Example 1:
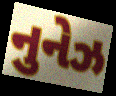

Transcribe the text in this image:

નુનેઝ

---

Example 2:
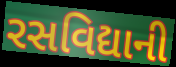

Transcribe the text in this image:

રસવિદ્યાની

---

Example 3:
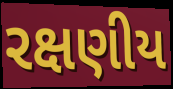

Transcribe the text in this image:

રક્ષણીય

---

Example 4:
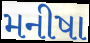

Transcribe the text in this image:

મનીષા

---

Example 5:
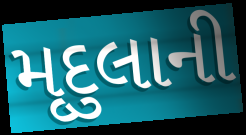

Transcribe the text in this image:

મૃદુલાની